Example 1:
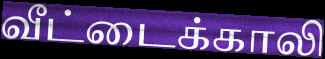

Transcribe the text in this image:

வீட்டைக்காலி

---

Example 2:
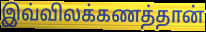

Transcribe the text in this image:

இவ்விலக்கணத்தான்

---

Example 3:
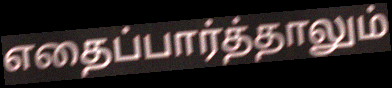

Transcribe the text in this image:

எதைப்பார்த்தாலும்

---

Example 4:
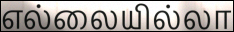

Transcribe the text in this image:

எல்லையில்லா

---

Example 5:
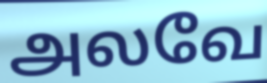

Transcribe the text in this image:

அலவே